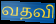
வதவி